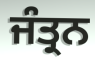
ਜੰਤ੍ਰਨ